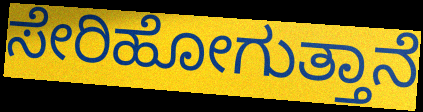
ಸೇರಿಹೋಗುತ್ತಾನೆ